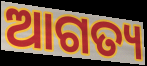
ଆଗତ୍ୟ